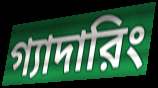
গ্যাদারিং